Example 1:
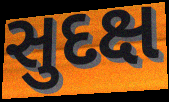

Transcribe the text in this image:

સુદક્ષ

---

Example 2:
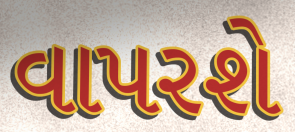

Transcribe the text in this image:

વાપરશે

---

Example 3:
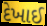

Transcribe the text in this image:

દેખાઈ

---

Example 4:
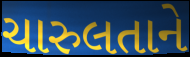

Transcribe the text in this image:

ચારુલતાને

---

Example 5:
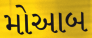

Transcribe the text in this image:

મોઆબ